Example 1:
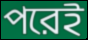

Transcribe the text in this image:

পরেই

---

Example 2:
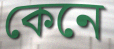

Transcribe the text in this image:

কেনে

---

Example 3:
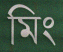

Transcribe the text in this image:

মিং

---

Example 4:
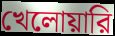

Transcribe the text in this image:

খেলোয়ারি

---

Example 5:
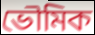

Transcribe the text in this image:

ভৌমিক